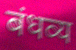
बंधव्य